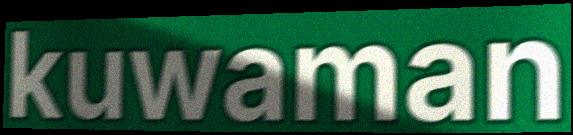
kuwaman